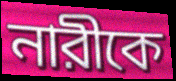
নারীকে